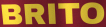
BRITO